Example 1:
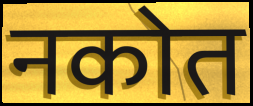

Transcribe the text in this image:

नकोत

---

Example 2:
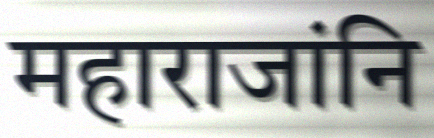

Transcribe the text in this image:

महाराजांनि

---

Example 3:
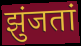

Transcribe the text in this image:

झुंजतां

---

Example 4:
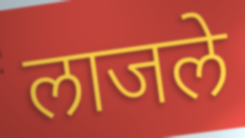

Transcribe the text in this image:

लाजले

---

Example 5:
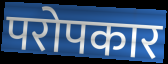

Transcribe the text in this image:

परोपकार